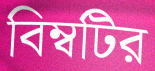
বিম্বটির